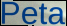
Peta